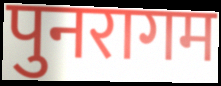
पुनरागम